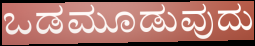
ಒಡಮೂಡುವುದು